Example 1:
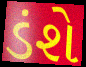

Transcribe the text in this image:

ડંશે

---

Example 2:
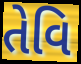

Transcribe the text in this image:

તેવિ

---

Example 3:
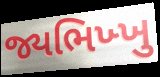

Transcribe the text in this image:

જ્યભિખ્ખુ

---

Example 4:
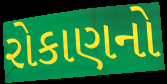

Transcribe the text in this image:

રોકાણનો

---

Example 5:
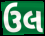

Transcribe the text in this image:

ઉલ